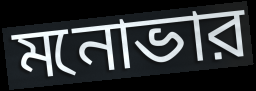
মনোভার